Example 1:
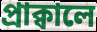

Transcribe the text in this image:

প্রাক্বালে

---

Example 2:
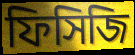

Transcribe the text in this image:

ফিসিজি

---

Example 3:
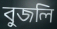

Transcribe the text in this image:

বুজলি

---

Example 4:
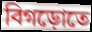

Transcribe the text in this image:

বিগড়োতে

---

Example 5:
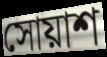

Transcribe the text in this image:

সোয়াশ